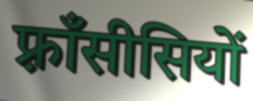
फ़्राँसीसियों